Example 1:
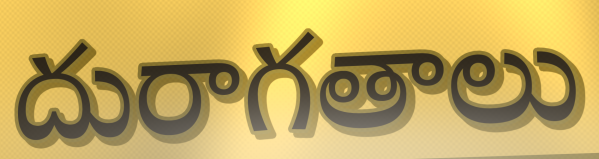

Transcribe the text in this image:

దురాగతాలు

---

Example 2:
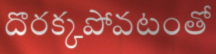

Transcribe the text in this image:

దొరక్కపోవటంతో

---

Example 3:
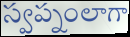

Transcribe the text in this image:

స్వప్నంలాగా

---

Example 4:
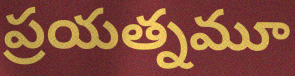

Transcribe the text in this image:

ప్రయత్నమూ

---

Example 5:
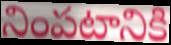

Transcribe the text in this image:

నింపటానికి